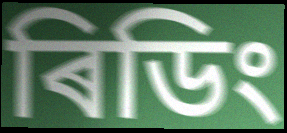
ৰিডিং